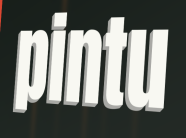
pintu